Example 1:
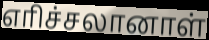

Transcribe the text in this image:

எரிச்சலானாள்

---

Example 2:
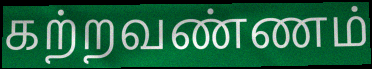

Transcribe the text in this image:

கற்றவண்ணம்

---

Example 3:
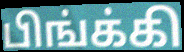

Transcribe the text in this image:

பிங்க்கி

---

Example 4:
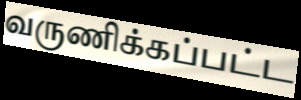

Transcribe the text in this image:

வருணிக்கப்பட்ட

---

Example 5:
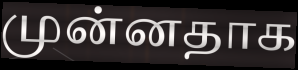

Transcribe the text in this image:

முன்னதாக